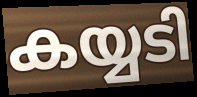
കയ്യടി